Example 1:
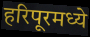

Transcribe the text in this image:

हरिपूरमध्ये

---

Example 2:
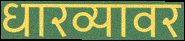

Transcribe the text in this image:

धारव्यावर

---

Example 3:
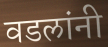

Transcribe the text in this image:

वडलांनी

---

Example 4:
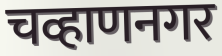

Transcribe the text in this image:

चव्हाणनगर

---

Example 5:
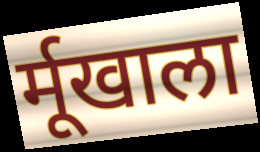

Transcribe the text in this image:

र्मूखाला